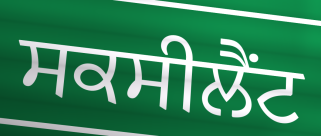
ਸਕਸੀਲੈਂਟ